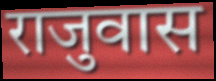
राजुवास